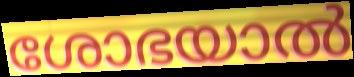
ശോഭയാൽ